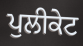
ਪੁਲੀਕੇਟ